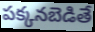
పక్కనబెడితే